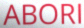
ABORI